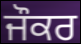
ਜੌਕਰ